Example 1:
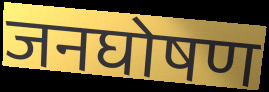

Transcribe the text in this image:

जनघोषण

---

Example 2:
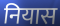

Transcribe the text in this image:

नियास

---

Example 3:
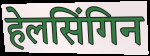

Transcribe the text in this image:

हेलसिंगिन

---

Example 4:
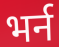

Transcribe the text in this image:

भर्न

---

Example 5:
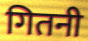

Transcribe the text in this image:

गितनी